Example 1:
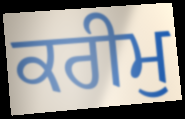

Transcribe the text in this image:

ਕਰੀਮੁ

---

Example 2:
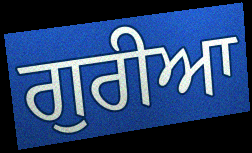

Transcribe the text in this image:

ਗੁਰੀਆ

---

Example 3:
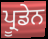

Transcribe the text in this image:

ਪ੍ਰੂਡੇਨ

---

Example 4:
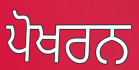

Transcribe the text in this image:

ਪੋਖਰਨ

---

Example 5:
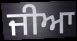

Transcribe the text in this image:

ਜੀਆ